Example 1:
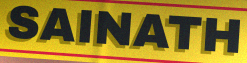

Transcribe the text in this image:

SAINATH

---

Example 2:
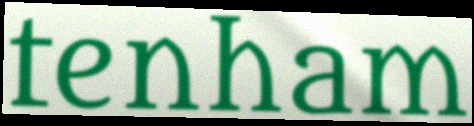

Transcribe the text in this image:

tenham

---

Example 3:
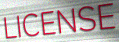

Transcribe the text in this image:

LICENSE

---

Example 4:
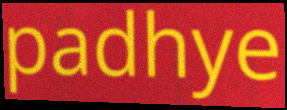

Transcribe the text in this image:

padhye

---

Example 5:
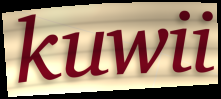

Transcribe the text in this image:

kuwii